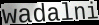
wadalni